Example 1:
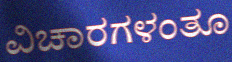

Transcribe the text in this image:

ವಿಚಾರಗಳಂತೂ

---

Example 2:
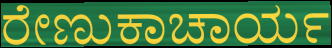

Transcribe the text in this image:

ರೇಣುಕಾಚಾರ್ಯ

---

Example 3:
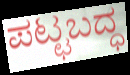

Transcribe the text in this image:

ಪಟ್ಟಬದ್ಧ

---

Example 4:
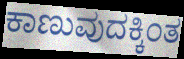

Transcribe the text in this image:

ಕಾಣುವುದಕ್ಕಿಂತ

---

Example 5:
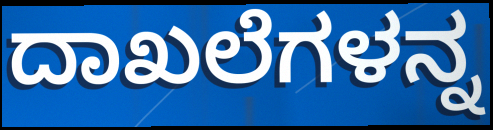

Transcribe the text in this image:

ದಾಖಲೆಗಳನ್ನ